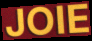
JOIE